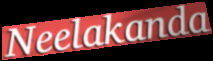
Neelakanda